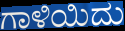
ಗಾಳಿಯಿದು